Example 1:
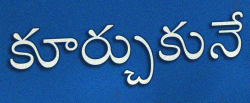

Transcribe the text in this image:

కూర్చుకునే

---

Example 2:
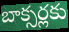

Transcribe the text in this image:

బాక్సర్లకు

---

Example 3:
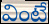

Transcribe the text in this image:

వింటే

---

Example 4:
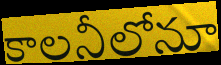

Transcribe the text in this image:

కాలనీలోనూ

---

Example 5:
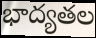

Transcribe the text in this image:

భాద్యతల